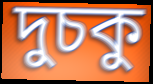
দুচকু